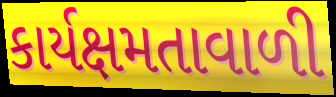
કાર્યક્ષમતાવાળી